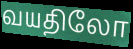
வயதிலோ